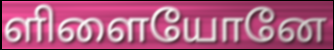
ளிளையோனே